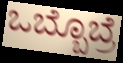
ಒಬ್ಬೊಬ್ರೆ